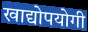
खाद्योपयोगी